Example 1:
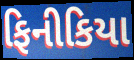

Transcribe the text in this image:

ફિનીકિયા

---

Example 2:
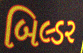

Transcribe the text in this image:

બિલ્ડર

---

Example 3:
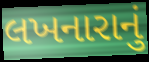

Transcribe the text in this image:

લખનારાનું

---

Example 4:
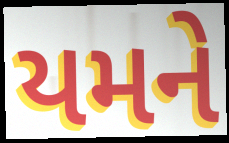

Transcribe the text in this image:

યમને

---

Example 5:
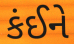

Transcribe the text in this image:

કંઈને